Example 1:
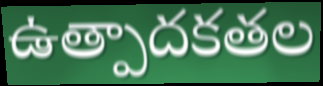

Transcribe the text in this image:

ఉత్పాదకతల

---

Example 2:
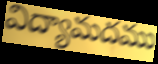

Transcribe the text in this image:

విద్యామదము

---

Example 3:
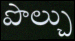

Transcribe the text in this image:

పొల్చు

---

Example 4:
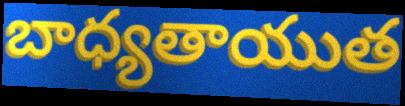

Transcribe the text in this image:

బాధ్యతాయుత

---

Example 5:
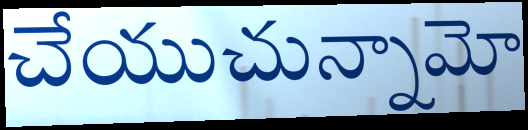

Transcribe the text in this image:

చేయుచున్నామో